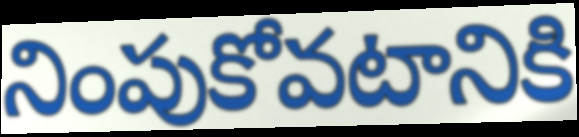
నింపుకోవటానికి